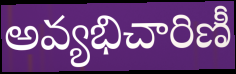
అవ్యభిచారిణీ